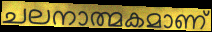
ചലനാത്മകമാണ്